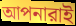
আপনারাই